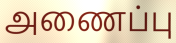
அணைப்பு